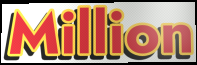
Million